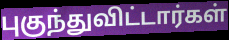
புகுந்துவிட்டார்கள்